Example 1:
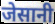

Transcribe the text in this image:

जेसानी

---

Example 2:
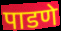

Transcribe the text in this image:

पाडणे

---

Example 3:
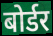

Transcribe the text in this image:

बोर्डर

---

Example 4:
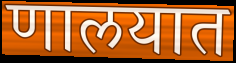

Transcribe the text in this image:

णालयात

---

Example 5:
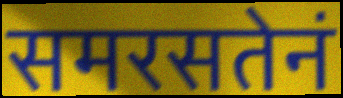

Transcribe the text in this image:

समरसतेनं